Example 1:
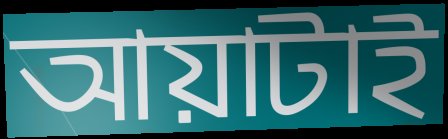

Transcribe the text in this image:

আয়াটাই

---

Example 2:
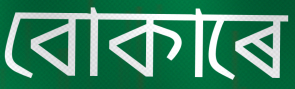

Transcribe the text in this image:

বোকাৰে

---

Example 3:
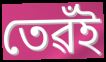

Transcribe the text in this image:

তেৱঁই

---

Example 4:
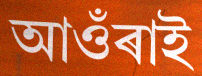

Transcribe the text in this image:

আওঁৰাই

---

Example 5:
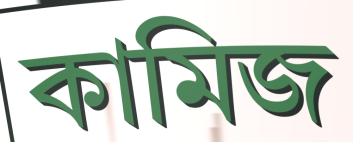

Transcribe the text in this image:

কামিজ